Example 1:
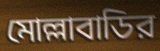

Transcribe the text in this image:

মোল্লাবাডির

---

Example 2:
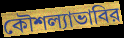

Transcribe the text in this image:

কৌশল্যাভাবির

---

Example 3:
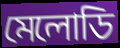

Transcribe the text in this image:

মেলোডি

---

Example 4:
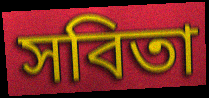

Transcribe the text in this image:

সবিতা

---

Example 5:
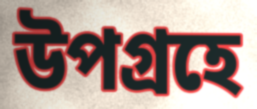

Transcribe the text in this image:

উপগ্রহে